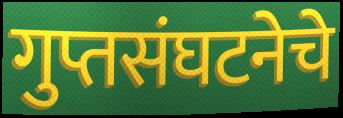
गुप्तसंघटनेचे